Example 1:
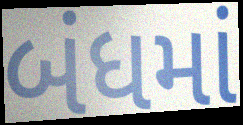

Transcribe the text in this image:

બંધમાં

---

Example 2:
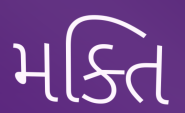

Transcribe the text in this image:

મક્તિ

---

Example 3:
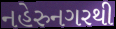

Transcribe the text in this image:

નહેરુનગરથી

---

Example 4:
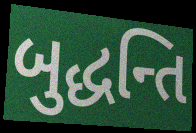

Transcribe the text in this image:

બુદ્ધન્તિ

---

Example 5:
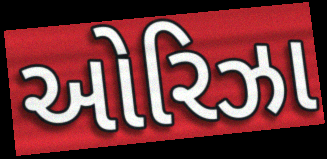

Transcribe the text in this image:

ઓરિઝા